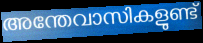
അന്തേവാസികളുണ്ട്